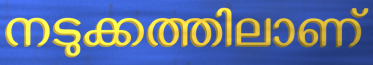
നടുക്കത്തിലാണ്